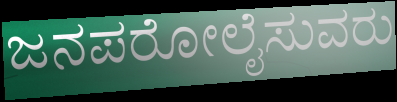
ಜನಪರೋಲೈಸುವರು